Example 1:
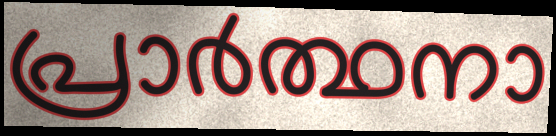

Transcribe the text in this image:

പ്രാർത്ഥനാ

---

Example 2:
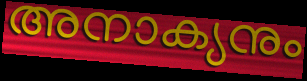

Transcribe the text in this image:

അനാക്യനും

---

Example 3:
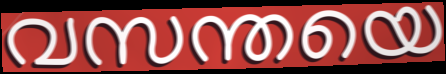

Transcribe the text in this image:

വസന്തയെ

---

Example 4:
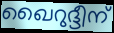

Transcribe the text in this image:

ഖൈറുദ്ദീന്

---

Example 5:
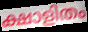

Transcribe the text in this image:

ക്ഷാളിതം